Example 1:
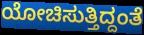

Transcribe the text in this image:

ಯೋಚಿಸುತ್ತಿದ್ದಂತೆ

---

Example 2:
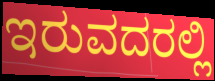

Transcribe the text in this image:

ಇರುವದರಲ್ಲಿ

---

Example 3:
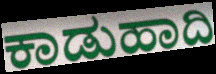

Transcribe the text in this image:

ಕಾಡುಹಾದಿ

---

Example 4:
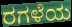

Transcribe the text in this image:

ರಗಳೆಯ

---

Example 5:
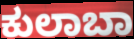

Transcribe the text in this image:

ಕುಲಾಬಾ